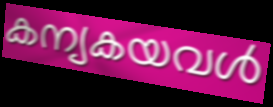
കന്യകയവൾ